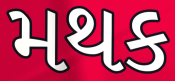
મથક